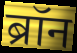
ब्रॉन